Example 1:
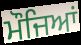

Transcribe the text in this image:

ਮੌਜਿਆਂ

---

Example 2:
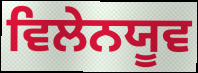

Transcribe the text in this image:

ਵਿਲੇਨਯੂਵ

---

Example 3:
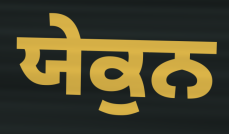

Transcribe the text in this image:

ਯੇਕੁਨ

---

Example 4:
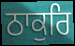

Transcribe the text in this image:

ਠਾਕੁਰਿ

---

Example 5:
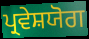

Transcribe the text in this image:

ਪ੍ਰਵੇਸ਼ਯੋਗ